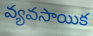
వ్యవసాయిక